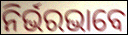
ନିର୍ଭରଭାବେ